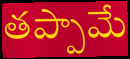
తప్పామే